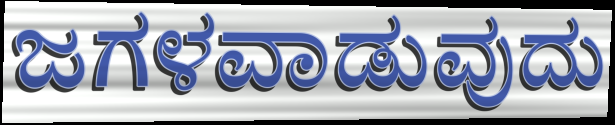
ಜಗಳವಾಡುವುದು